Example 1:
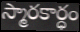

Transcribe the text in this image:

స్మారకార్ధం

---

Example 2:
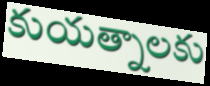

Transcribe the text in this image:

కుయత్నాలకు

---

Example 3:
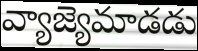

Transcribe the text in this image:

వ్యాజ్యెమాడడు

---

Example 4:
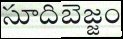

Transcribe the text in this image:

సూదిబెజ్జం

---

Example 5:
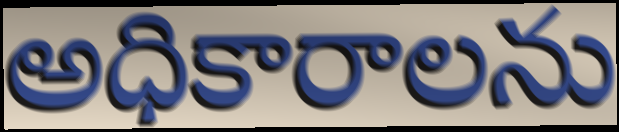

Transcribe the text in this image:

అధికారాలను